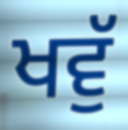
ਖਵੁੱ